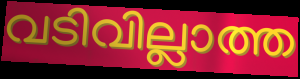
വടിവില്ലാത്ത